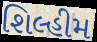
શિલ્હીમ